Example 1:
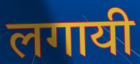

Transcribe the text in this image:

लगायी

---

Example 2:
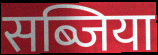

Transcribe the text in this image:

सब्ज़िया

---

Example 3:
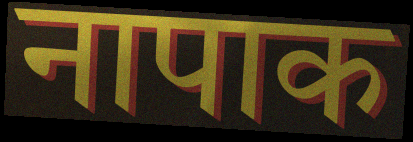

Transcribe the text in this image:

नापाक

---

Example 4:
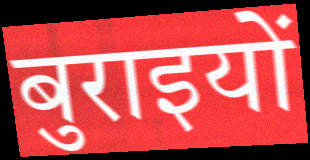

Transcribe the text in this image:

बुराइयों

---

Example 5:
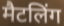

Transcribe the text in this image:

मैटलिंग